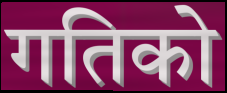
गतिको